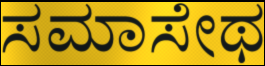
ಸಮಾಸೇಥ